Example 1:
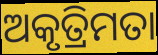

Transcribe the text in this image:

ଅକୃତ୍ରିମତା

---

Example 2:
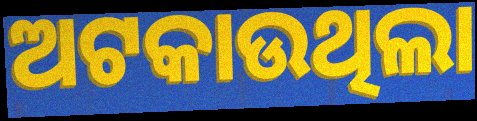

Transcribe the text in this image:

ଅଟକାଉଥିଲା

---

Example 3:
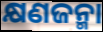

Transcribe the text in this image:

କ୍ଷଣଜନ୍ମା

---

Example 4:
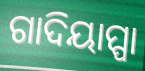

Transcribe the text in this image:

ଗାଦିୟାପ୍ପା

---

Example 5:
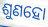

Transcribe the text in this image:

ଶୁଣହୋ